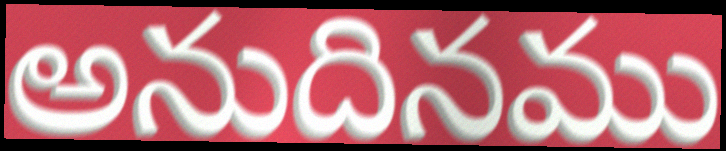
అనుదినము